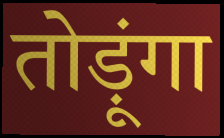
तोड़ूंगा